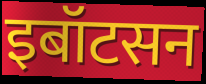
इबॉटसन